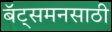
बॅट्समनसाठी